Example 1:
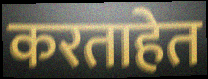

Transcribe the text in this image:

करताहेत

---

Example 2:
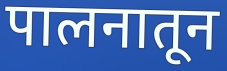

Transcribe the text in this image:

पालनातून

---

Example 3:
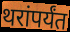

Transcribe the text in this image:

थरांपर्यंत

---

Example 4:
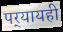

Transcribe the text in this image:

पर्यायही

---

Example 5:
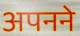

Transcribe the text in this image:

अपनने